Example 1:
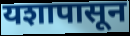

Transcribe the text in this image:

यशापासून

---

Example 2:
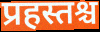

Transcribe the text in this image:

प्रहस्तश्च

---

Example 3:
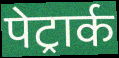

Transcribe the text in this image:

पेट्रार्क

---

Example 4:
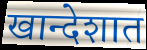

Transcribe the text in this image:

खान्देशात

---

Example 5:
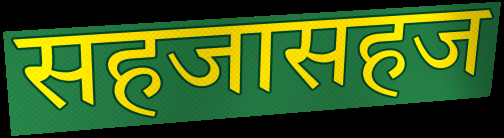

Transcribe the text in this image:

सहजासहज